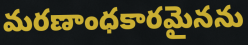
మరణాంధకారమైనను